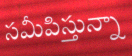
సమీపిస్తున్నా